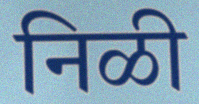
निळी